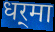
धर्मा